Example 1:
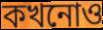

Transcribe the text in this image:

কখনোও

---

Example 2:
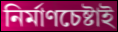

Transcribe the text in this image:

নির্মাণচেষ্টাই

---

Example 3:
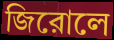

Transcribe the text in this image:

জিরোলে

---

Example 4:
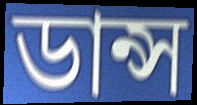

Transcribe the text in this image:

ডান্স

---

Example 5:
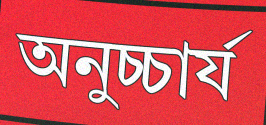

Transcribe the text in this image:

অনুচ্চার্য